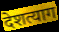
देशत्याग